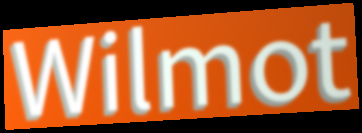
Wilmot